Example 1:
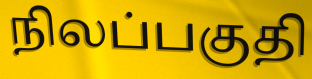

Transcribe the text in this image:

நிலப்பகுதி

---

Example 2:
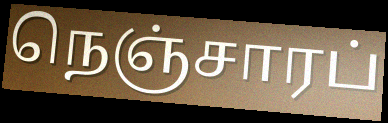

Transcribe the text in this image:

நெஞ்சாரப்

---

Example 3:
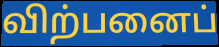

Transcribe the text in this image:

விற்பனைப்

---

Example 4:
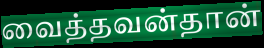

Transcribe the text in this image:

வைத்தவன்தான்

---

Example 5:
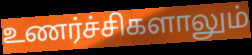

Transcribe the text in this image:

உணர்ச்சிகளாலும்